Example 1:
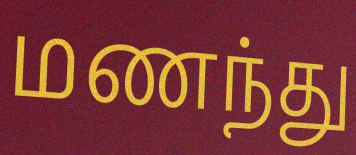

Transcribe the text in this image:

மணந்து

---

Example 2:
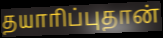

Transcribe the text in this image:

தயாரிப்புதான்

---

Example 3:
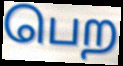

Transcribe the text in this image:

பெற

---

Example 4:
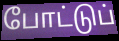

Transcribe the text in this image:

போட்டுப்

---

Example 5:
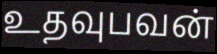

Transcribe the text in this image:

உதவுபவன்